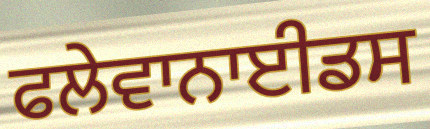
ਫਲੇਵਾਨਾਈਡਸ